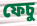
ফেচু